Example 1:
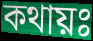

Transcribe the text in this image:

কথায়ঃ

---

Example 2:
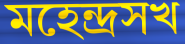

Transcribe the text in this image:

মহেন্দ্রসখ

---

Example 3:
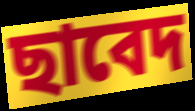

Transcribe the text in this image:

ছাবেদ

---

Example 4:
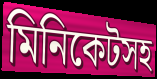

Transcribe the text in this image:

মিনিকেটসহ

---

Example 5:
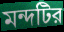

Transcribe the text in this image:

মন্দটির